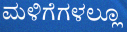
ಮಳಿಗೆಗಳಲ್ಲೂ